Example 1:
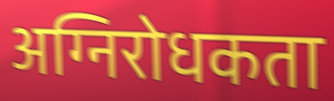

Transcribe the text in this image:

अग्निरोधकता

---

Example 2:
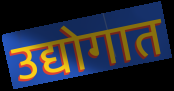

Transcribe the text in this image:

उद्योगात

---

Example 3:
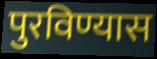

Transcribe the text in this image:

पुरविण्यास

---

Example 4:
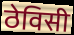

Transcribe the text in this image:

ठेविसी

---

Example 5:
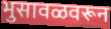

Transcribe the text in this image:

भुसावळवरून